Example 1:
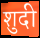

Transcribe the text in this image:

शुदी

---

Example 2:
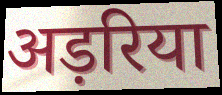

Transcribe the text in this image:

अड़रिया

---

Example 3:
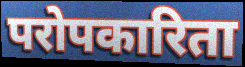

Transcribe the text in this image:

परोपकारिता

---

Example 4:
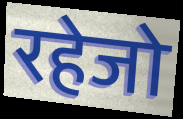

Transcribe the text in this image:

रहेजो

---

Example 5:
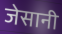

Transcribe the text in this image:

जेसानी